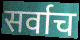
सर्वाच